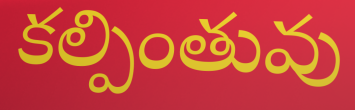
కల్పింతువు